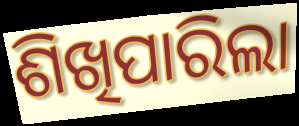
ଶିଖିପାରିଲା